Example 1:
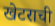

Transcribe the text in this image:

खेटराची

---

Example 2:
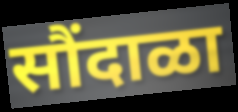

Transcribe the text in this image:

सौंदाळा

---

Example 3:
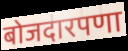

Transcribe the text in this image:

बोजदारपणा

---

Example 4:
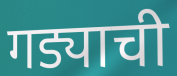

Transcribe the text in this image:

गड्याची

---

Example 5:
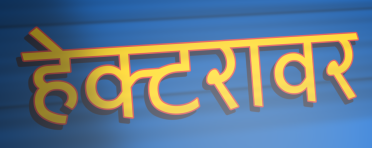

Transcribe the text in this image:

हेक्टरावर